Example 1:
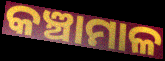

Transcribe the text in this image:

କଞ୍ଚାମାଳ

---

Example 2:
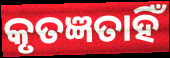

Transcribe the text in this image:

କୃତଜ୍ଞତାହିଁ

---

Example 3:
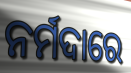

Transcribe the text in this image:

ନର୍ମଦାରେ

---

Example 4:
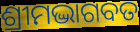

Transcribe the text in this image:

ଶ୍ରୀମଦ୍ଭାଗବତ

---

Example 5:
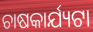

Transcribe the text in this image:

ଚାଷକାର୍ଯ୍ୟଟା